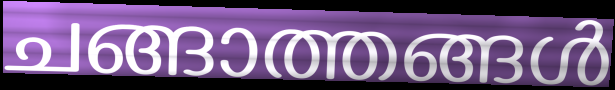
ചങ്ങാത്തങ്ങൾ